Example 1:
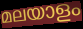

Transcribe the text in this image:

മലയാളം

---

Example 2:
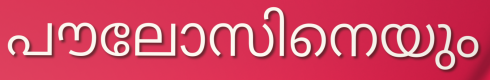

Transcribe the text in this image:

പൗലോസിനെയും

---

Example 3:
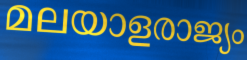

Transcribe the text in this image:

മലയാളരാജ്യം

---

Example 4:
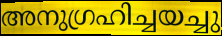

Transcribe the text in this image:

അനുഗ്രഹിച്ചയച്ചു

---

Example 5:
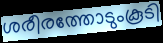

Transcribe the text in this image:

ശരീരത്തോടുംകൂടി